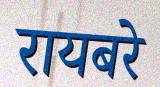
रायबरे